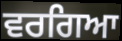
ਵਰਗਿਆ